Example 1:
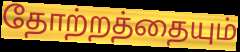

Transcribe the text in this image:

தோற்றத்தையும்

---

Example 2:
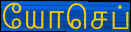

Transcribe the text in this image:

யோசெப்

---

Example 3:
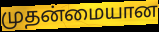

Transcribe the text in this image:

முதன்மையான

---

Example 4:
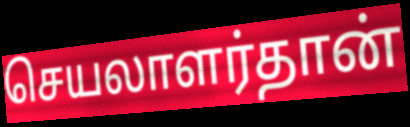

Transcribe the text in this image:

செயலாளர்தான்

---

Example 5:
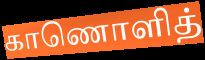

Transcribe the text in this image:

காணொளித்